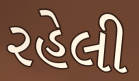
રહેલી